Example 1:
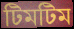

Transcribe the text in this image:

টিমটিম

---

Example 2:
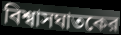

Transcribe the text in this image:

বিশ্বাসঘাতকের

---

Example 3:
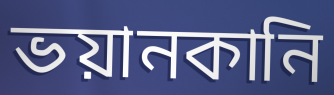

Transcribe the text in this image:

ভয়ানকানি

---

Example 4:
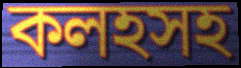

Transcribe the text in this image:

কলহসহ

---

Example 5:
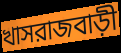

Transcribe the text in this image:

খাসরাজবাড়ী